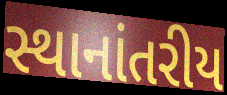
સ્થાનાંતરીય